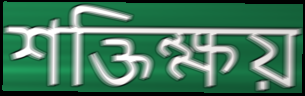
শক্তিক্ষয়